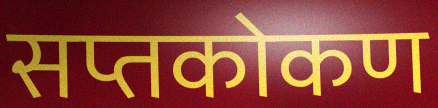
सप्तकोकण